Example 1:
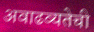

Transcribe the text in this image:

अवाढव्यतेची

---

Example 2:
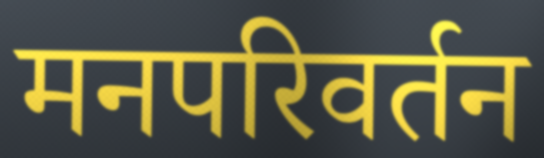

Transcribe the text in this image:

मनपरिवर्तन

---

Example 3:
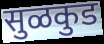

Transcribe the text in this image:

सुळकुड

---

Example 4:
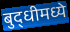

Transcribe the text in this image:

बुद्धीमध्ये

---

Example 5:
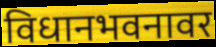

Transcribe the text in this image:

विधानभवनावर